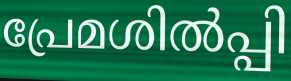
പ്രേമശിൽപ്പി